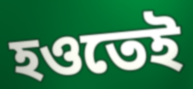
হওতেই